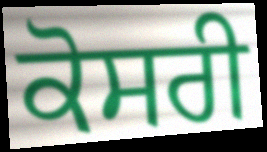
ਕੋਸਰੀ